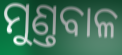
ମୁଣ୍ତବାଳ